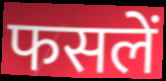
फसलें